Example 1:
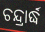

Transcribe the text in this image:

ଚନ୍ଦ୍ରାର୍ଦ୍ଧ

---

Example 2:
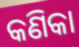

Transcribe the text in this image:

କଣିକା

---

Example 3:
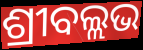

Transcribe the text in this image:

ଶ୍ରୀବଲ୍ଲଭ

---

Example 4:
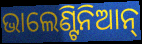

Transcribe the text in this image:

ଭାଲେଣ୍ଟିନିଆନ୍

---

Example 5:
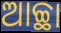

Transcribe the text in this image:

ଆଚ୍ଛା